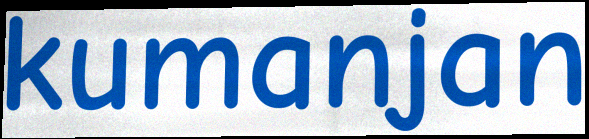
kumanjan